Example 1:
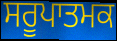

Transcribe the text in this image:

ਸਰੂਪਾਤਮਕ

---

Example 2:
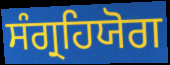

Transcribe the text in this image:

ਸੰਗ੍ਰਹਿਯੋਗ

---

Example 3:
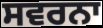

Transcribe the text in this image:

ਸਵਰਨਾ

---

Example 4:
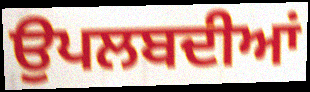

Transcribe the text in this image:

ਉਪਲਬਦੀਆਂ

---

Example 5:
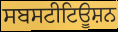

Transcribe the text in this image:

ਸਬਸਟੀਟਿਊਸ਼ਨ